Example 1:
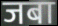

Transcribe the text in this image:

जबा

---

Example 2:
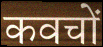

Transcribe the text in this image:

कवचों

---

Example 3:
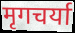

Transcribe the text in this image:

मृगचर्या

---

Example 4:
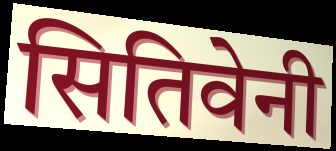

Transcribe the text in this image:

सितिवेनी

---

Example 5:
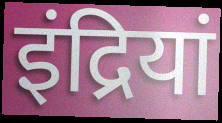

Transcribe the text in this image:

इंद्रियां